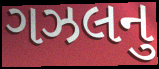
ગઝલનુ